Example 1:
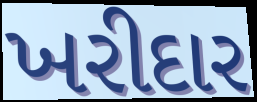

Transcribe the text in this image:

ખરીદાર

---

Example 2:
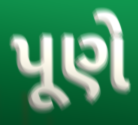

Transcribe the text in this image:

પૂણે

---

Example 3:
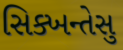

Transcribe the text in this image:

સિક્ખન્તેસુ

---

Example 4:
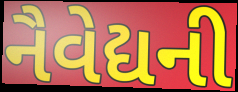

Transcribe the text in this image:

નૈવેદ્યની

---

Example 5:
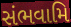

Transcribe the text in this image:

સંભવામિ